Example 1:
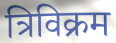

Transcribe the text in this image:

त्रिविक्रम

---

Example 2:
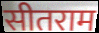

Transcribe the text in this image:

सीतराम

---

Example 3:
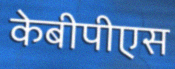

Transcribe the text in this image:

केबीपीएस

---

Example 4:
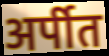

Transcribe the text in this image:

अर्पीत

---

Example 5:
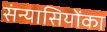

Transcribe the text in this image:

संन्यासियोंका